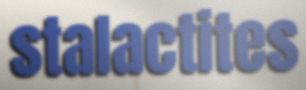
stalactites